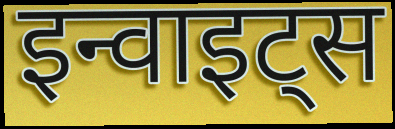
इन्वाइट्स